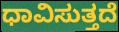
ಧಾವಿಸುತ್ತದೆ